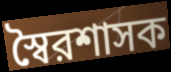
স্বৈরশাসক